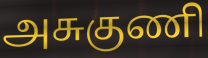
அசுகுணி